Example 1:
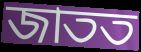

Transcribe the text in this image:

জাতত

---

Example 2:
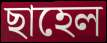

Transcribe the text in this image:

ছাহেল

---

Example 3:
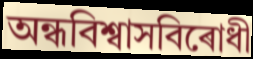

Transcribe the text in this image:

অন্ধবিশ্বাসবিৰোধী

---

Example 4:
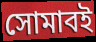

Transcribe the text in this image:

সোমাবই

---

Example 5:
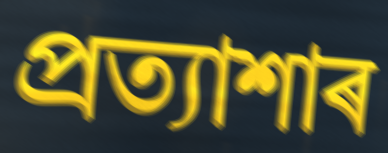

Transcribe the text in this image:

প্ৰত্যাশাৰ